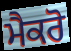
ਮੈਕਰੋ